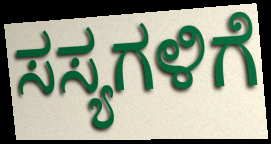
ಸಸ್ಯಗಳಿಗೆ